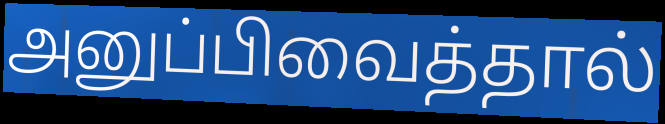
அனுப்பிவைத்தால்